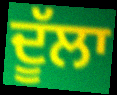
ਦੂੱਲਾ